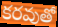
కరవుతో